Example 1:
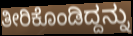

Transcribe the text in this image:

ತೀರಿಕೊಂಡಿದ್ದನ್ನು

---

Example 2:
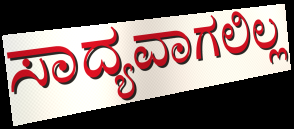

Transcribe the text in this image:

ಸಾದ್ಯವಾಗಲಿಲ್ಲ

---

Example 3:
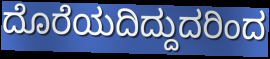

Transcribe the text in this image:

ದೊರೆಯದಿದ್ದುದರಿಂದ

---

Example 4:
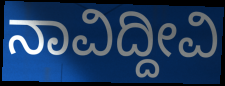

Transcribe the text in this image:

ನಾವಿದ್ದೀವಿ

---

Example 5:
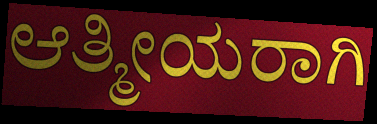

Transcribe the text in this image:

ಆತ್ಮೀಯರಾಗಿ